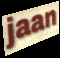
jaan